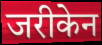
जरीकेन